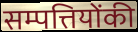
सम्पत्तियोंकी